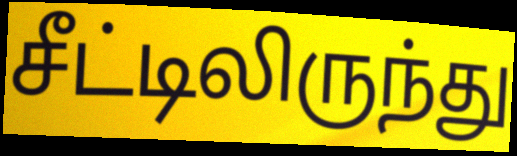
சீட்டிலிருந்து